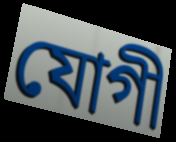
যোগী